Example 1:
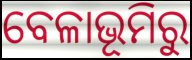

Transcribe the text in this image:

ବେଳାଭୂମିରୁ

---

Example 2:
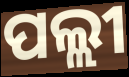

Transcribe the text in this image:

ପଲ୍ଲୀ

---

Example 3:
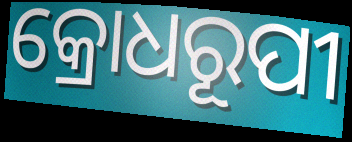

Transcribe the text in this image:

କ୍ରୋଧରୂପୀ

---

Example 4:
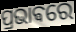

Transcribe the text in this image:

ପ୍ରଭାଵରେ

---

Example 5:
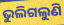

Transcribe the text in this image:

ଭୁଲିଗଲୁଣି